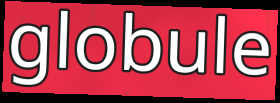
globule